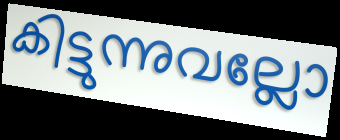
കിട്ടുന്നുവല്ലോ